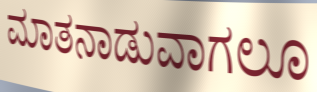
ಮಾತನಾಡುವಾಗಲೂ